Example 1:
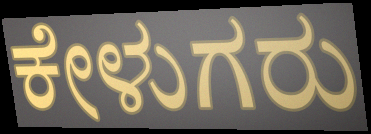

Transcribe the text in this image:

ಕೇಳುಗರು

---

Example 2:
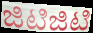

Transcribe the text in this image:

ಜಿಟಿಜಿಟಿ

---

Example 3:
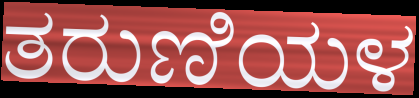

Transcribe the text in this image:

ತರುಣಿಯಳ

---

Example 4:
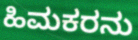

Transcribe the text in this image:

ಹಿಮಕರನು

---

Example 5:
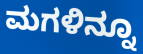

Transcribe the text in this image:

ಮಗಳಿನ್ನೂ